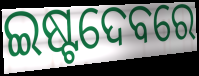
ଇଷ୍ଟଦେବରେ